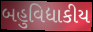
બહુવિદ્યાકીય